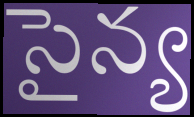
సైన్య